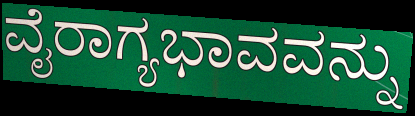
ವೈರಾಗ್ಯಭಾವವನ್ನು